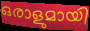
ഒരാളുമായി